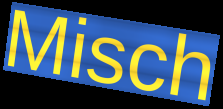
Misch